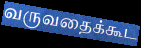
வருவதைக்கூட